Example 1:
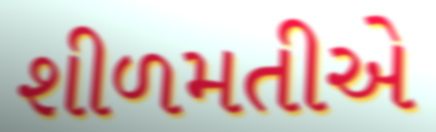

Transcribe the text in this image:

શીળમતીએ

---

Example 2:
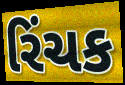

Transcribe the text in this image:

રિંચક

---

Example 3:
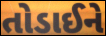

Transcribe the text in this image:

તોડાઈને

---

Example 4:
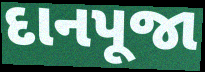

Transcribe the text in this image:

દાનપૂજા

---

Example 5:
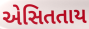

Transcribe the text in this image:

એસિતતાય